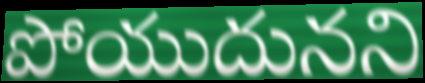
పోయుదునని